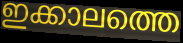
ഇക്കാലത്തെ